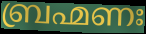
ബ്രഹ്മണഃ